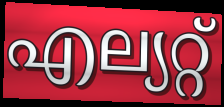
എല്യറ്റ്